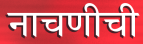
नाचणीची